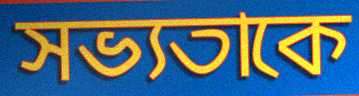
সভ্যতাকে